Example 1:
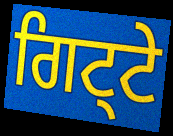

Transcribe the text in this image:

ਗਿਟ੍ਟੇ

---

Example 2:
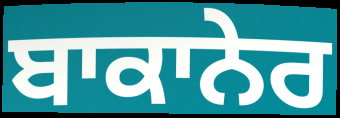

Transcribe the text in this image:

ਬਾਕਾਨੇਰ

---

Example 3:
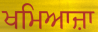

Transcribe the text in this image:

ਖਮਿਆਜ਼ਾ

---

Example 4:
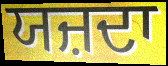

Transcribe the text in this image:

ਯਜ਼ਦਾ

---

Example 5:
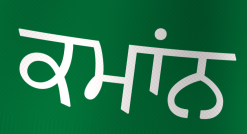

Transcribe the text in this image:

ਕਮਾਂਨ